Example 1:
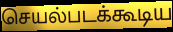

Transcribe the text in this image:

செயல்படக்கூடிய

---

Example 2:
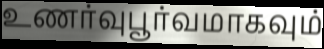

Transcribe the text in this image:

உணர்வுபூர்வமாகவும்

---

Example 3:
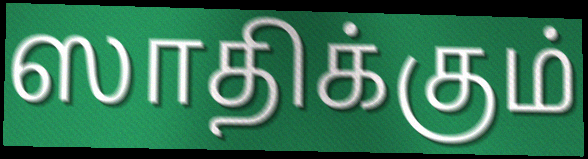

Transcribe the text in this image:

ஸாதிக்கும்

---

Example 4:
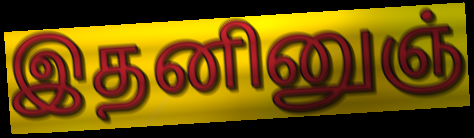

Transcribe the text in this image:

இதனினுஞ்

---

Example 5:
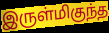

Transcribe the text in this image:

இருள்மிகுந்த